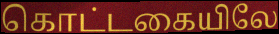
கொட்டகையிலே